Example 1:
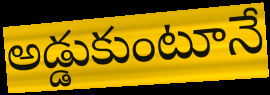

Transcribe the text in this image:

అడ్డుకుంటూనే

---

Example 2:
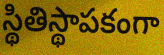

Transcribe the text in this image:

స్థితిస్థాపకంగా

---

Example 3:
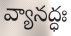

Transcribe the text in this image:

వ్యానద్ధః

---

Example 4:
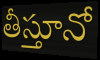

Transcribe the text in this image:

తీస్తూనో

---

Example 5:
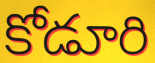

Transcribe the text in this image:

కోడూరి